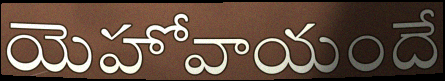
యెహోవాయందే